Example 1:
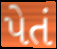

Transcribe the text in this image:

પેતં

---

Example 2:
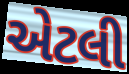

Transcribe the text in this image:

એટલી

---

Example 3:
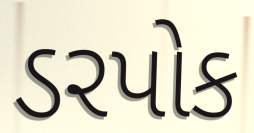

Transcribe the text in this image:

ડરપોક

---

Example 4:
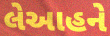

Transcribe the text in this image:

લેઆહને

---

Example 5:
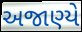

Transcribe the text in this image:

અજાણ્યે